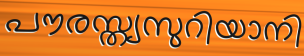
പൗരസ്ത്യസുറിയാനി